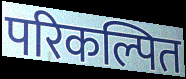
परिकल्पित